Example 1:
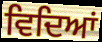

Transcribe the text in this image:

ਵਿਦਿਆਂ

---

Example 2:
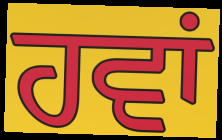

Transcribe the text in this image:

ਹਵਾਂ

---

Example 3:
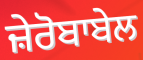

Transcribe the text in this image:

ਜ਼ੇਰੋਬਾਬੇਲ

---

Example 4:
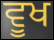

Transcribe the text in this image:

ਵੂਖ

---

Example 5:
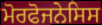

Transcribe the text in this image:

ਮੋਰਫੋਜਨੇਸਿਸ